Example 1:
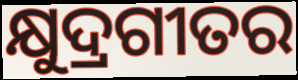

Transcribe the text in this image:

କ୍ଷୁଦ୍ରଗୀତର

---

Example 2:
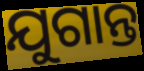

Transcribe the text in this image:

ଯୁଗାନ୍ତ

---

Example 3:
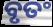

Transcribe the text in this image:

ବୃତଂ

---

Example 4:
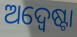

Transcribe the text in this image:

ଅଦ୍ୱେଷ୍ଟା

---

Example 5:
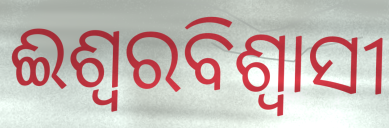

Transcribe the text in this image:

ଈଶ୍ବରବିଶ୍ବାସୀ